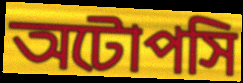
অটোপসি